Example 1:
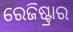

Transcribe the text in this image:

ରେଜିଷ୍ଟ୍ରାର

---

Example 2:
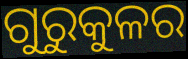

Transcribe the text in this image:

ଗୁରୁକୁଳର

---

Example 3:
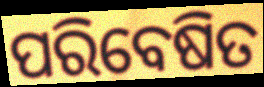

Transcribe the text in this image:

ପରିବେଷିତ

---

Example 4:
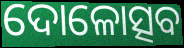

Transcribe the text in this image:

ଦୋଳୋତ୍ସବ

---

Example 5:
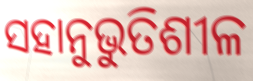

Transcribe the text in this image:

ସହାନୁଭୁତିଶୀଳ